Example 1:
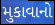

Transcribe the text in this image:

મુકાવાનો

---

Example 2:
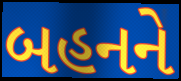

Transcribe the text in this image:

બહનને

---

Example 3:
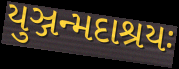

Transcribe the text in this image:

યુઞ્જન્મદાશ્રયઃ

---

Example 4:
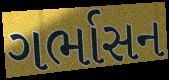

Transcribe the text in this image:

ગર્ભાસન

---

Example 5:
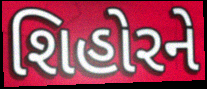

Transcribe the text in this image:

શિહોરને